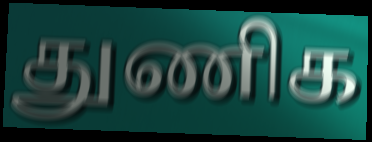
துணிக